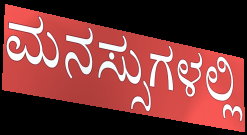
ಮನಸ್ಸುಗಳಲ್ಲಿ